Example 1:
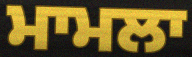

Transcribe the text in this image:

ਮਾਮਲਾ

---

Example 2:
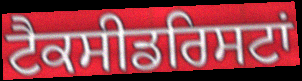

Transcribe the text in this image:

ਟੈਕਸੀਡਰਿਸਟਾਂ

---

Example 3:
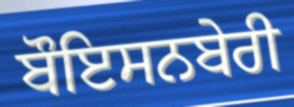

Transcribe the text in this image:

ਬੌਇਸਨਬੇਰੀ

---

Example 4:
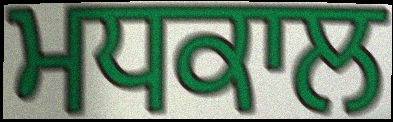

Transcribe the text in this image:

ਮਧਕਾਲ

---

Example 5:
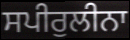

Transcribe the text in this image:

ਸਪੀਰੁਲੀਨਾ